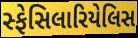
સ્ફેસિલારિયેલિસ